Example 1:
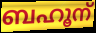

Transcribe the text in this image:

ബഹൂന്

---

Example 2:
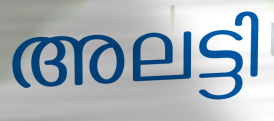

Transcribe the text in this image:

അലട്ടി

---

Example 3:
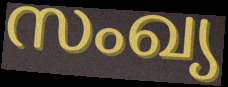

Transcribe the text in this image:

സംഖ്യ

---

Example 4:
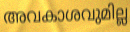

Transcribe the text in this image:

അവകാശവുമില്ല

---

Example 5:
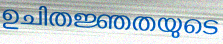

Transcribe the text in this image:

ഉചിതജ്ഞതയുടെ